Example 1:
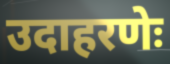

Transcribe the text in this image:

उदाहरणेः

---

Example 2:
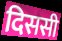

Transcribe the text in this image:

दिससी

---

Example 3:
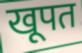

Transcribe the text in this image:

खूपत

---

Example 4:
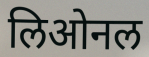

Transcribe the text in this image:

लिओनल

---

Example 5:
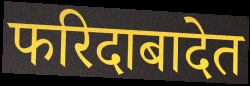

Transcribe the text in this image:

फरिदाबादेत